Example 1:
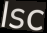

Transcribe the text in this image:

Isc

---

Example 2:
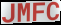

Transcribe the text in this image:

JMFC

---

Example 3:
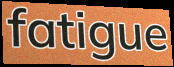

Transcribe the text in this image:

fatigue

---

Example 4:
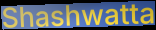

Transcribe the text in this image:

Shashwatta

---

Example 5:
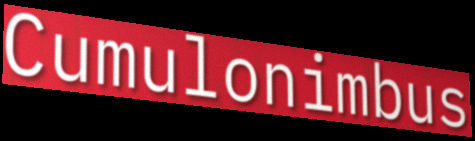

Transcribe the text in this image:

Cumulonimbus